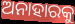
ଅନାହାରକୁ